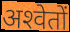
अश्‍वेतों